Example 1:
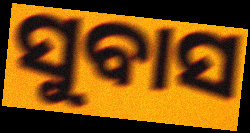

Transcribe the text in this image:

ସୁବାସ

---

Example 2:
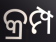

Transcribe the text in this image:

କ୍ରମ୍ପ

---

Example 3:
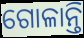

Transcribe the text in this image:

ଗୋଳାନ୍ତି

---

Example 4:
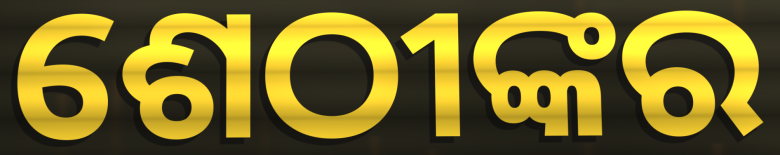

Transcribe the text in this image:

ଶେଠୀଙ୍କର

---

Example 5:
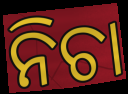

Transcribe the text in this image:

ନିଚା